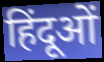
हिंदूओं